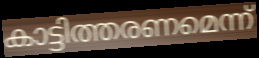
കാട്ടിത്തരണമെന്ന്